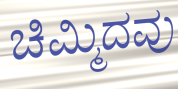
ಚಿಮ್ಮಿದವು